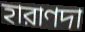
হারাণদা